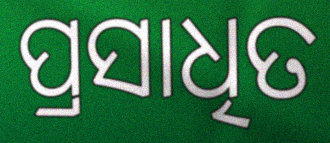
ପ୍ରସାଧିତ